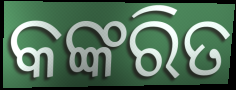
କଙ୍କରିତ